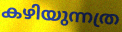
കഴിയുന്നത്ര